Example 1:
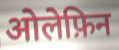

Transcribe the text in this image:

ओलेफ़िन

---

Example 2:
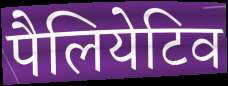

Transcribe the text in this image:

पैलियेटिव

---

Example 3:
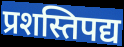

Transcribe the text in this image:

प्रशस्तिपद्य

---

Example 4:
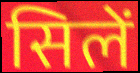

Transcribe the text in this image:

सिलें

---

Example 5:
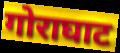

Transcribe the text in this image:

गोराघाट